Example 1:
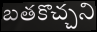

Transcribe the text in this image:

బతకొచ్చని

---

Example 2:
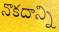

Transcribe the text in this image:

నొకదాన్ని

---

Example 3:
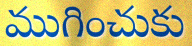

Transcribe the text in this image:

ముగించుకు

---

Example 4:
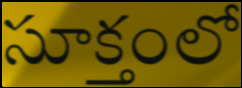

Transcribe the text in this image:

సూక్తంలో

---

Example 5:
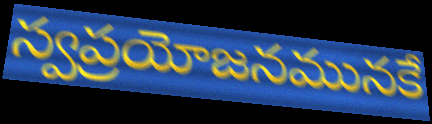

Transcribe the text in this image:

స్వప్రయోజనమునకే